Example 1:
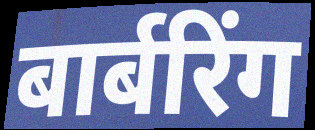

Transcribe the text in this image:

बार्बरिंग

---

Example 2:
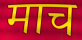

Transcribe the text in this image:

माच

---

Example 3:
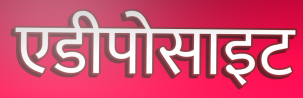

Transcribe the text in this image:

एडीपोसाइट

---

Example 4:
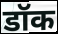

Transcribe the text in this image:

डॉक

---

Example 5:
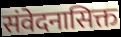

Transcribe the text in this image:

संवेदनासिक्त